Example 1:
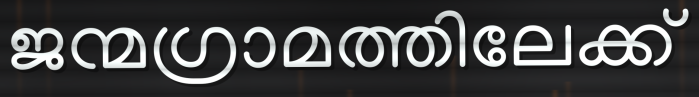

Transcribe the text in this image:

ജന്മഗ്രാമത്തിലേക്ക്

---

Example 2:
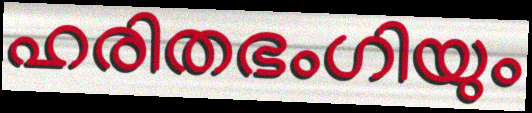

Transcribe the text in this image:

ഹരിതഭംഗിയും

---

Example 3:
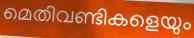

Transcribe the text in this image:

മെതിവണ്ടികളെയും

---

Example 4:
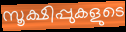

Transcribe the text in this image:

സൂക്ഷിപ്പുകളുടെ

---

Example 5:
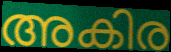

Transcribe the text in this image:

അകിര